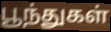
பூந்துகள்